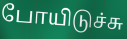
போயிடுச்சு